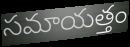
సమాయత్తం